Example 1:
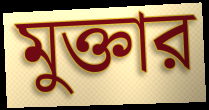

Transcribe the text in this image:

মুক্তার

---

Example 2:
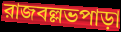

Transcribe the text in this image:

রাজবল্লভপাড়া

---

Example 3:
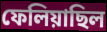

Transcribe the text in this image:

ফেলিয়াছিল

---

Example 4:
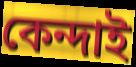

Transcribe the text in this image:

কেন্দাই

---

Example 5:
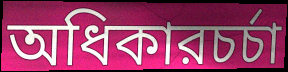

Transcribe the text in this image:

অধিকারচর্চা